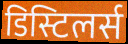
डिस्टिलर्स